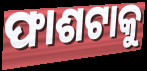
ଫାଶଟାକୁ